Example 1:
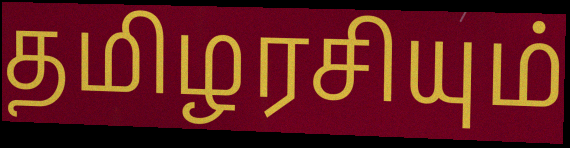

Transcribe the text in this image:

தமிழரசியும்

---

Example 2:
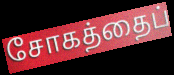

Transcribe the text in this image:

சோகத்தைப்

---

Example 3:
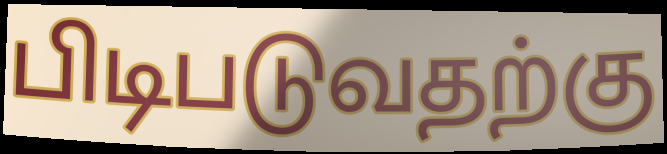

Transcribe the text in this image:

பிடிபடுவதற்கு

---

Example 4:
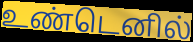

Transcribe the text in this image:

உண்டெனில்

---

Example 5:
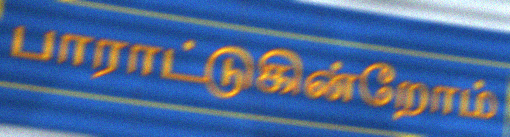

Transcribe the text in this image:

பாராட்டுகின்றோம்